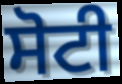
ਸੋਟੀ